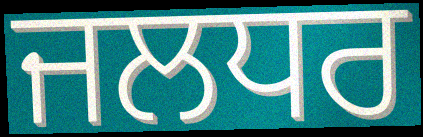
ਜਲਧਰ